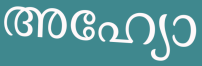
അഹ്യോ